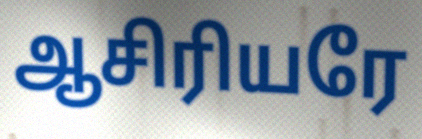
ஆசிரியரே